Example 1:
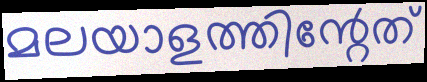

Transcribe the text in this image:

മലയാളത്തിന്റേത്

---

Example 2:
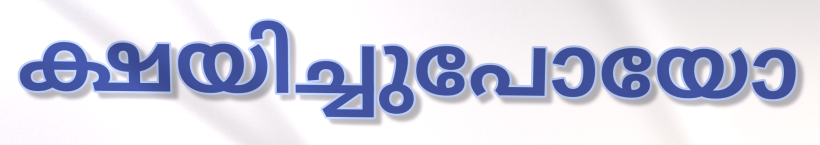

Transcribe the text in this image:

ക്ഷയിച്ചുപോയോ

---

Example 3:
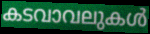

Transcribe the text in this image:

കടവാവലുകൾ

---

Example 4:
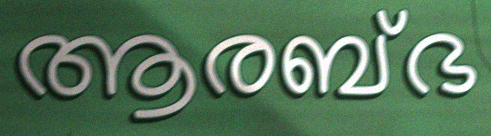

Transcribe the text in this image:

ആരബ്ഭ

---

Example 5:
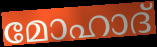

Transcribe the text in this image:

മോഹാദ്